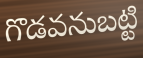
గొడవనుబట్టి